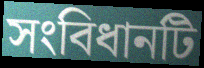
সংবিধানটি